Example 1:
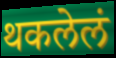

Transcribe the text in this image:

थकलेलं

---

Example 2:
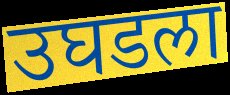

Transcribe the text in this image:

उघडला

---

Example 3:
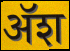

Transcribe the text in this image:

ॲश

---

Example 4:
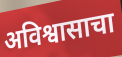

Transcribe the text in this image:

अविश्वासाचा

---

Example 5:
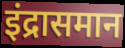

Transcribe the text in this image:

इंद्रासमान